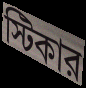
স্টিকার